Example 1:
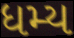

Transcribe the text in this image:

ધમ્ય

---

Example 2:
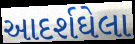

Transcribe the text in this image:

આદર્શઘેલા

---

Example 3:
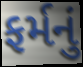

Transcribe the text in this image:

ફર્મનું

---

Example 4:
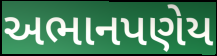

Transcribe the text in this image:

અભાનપણેય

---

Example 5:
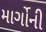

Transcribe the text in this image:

માર્ગોની